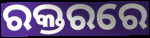
ରକ୍ତରରେ